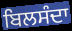
ਬਿਲਸੰਦਾ